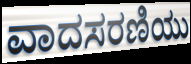
ವಾದಸರಣಿಯು